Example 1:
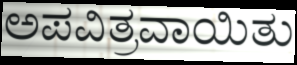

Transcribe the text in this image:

ಅಪವಿತ್ರವಾಯಿತು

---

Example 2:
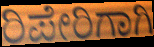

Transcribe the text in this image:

ರಿಪೇರಿಗಾಗಿ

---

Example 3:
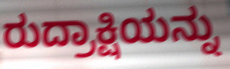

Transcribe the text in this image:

ರುದ್ರಾಕ್ಷಿಯನ್ನು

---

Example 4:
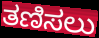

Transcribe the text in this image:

ತಣಿಸಲು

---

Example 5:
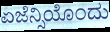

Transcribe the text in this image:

ಏಜೆನ್ಸಿಯೊಂದು